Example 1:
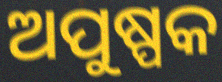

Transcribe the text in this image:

ଅପୁଷ୍ପକ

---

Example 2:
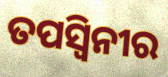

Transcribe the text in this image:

ତପସ୍ୱିନୀର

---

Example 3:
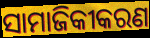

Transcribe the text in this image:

ସାମାଜିକୀକରଣ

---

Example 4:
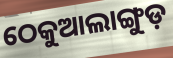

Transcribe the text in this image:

ଠେକୁଆଲାଙ୍ଗୁଡ଼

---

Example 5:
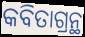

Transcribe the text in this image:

କବିତାଗ୍ରନ୍ଥ